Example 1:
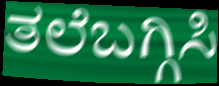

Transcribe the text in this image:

ತಲೆಬಗ್ಗಿಸಿ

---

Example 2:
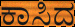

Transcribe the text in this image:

ಕಾಸಿದ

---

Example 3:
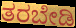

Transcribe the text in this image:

ತರಬೇಡಿ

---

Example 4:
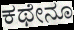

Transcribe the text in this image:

ಕಥೇನೂ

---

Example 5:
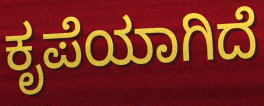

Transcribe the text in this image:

ಕೃಪೆಯಾಗಿದೆ